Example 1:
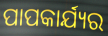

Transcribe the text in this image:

ପାପକାର୍ଯ୍ୟର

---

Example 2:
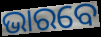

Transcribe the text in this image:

ଭାରବେ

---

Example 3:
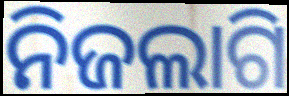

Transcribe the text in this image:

ନିଜଲାଗି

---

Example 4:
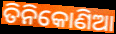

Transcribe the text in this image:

ତିନିକୋଣିଆ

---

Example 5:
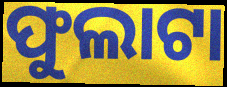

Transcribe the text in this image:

ଫୁଲାଟା